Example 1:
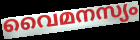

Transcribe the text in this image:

വൈമനസ്യം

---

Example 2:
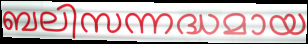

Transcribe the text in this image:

ബലിസന്നദ്ധമായ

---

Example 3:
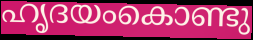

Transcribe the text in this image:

ഹൃദയംകൊണ്ടു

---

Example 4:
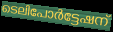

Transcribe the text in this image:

ടെലിപോർട്ടേഷന്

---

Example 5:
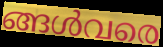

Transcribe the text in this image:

ങ്ങൾവരെ